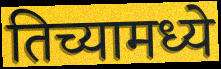
तिच्यामध्ये